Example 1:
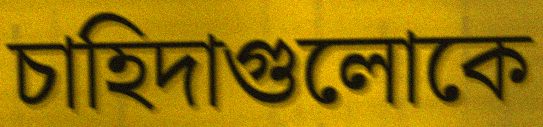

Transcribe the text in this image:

চাহিদাগুলোকে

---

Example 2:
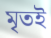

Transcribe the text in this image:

মৃতই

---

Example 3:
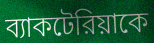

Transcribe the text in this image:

ব্যাকটেরিয়াকে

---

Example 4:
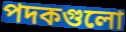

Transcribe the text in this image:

পদকগুলো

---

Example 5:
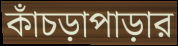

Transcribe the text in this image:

কাঁচড়াপাড়ার